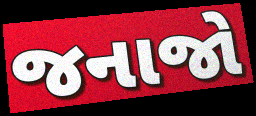
જનાજો